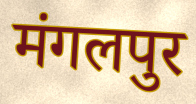
मंगलपुर